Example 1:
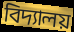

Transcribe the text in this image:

বিদ্যালয়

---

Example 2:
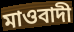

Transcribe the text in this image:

মাওবাদী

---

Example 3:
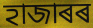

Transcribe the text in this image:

হাজাৰৰ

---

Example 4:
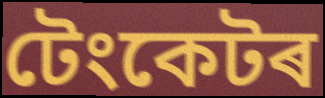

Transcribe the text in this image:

টেংকেটৰ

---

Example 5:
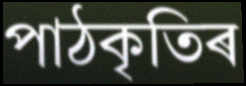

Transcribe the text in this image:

পাঠকৃতিৰ